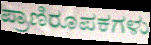
ಪ್ರಾಣಿರೂಪಕಗಳು